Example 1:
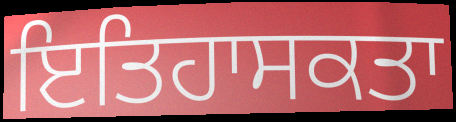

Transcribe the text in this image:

ਇਤਿਹਾਸਕਤਾ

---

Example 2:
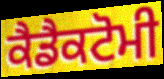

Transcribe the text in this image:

ਕੈਡੈਕਟੋਮੀ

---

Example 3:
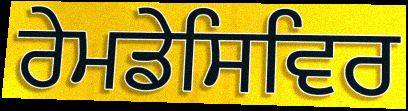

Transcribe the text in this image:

ਰੇਮਡੇਸਿਵਿਰ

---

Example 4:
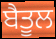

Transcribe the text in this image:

ਬੈਤੂਲ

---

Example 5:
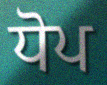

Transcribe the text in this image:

ਧੋਪ